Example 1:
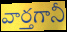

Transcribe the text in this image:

వార్తగానీ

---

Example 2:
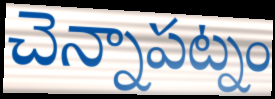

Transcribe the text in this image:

చెన్నాపట్నం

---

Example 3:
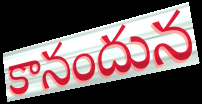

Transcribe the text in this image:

కానందున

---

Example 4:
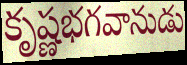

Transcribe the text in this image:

కృష్ణభగవానుడు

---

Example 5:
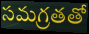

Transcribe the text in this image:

సమగ్రతతో